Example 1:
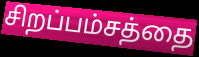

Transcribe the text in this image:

சிறப்பம்சத்தை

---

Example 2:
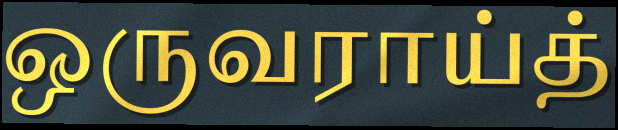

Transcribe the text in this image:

ஒருவராய்த்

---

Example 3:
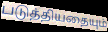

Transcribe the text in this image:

படுத்தியதையும்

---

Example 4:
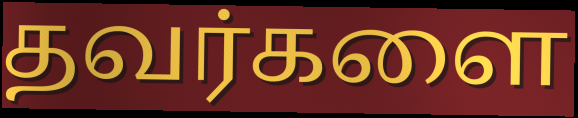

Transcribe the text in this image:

தவர்களை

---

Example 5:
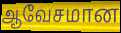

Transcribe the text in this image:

ஆவேசமான